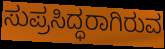
ಸುಪ್ರಸಿದ್ಧರಾಗಿರುವ